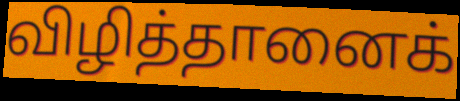
விழித்தானைக்